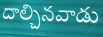
దాల్చినవాడు